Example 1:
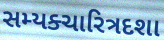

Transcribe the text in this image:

સમ્યક્ચારિત્રદશા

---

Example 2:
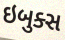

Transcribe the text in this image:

ઇબુક્સ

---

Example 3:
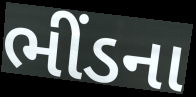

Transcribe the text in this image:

ભીંડના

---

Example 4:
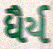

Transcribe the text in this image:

ધૈર્ય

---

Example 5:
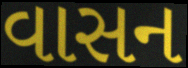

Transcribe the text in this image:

વાસન